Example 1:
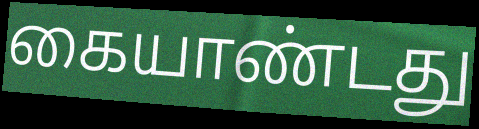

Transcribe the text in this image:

கையாண்டது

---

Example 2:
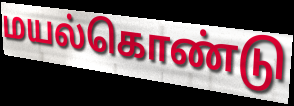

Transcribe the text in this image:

மயல்கொண்டு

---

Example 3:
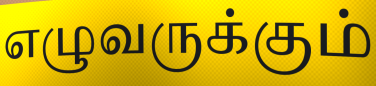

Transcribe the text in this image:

எழுவருக்கும்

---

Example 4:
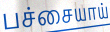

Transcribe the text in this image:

பச்சையாய்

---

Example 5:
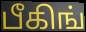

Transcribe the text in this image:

பீகிங்